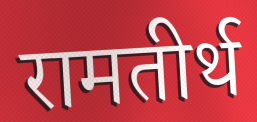
रामतीर्थ